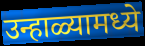
उन्हाळ्यामध्ये